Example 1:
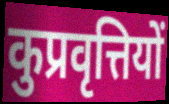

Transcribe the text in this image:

कुप्रवृत्तियों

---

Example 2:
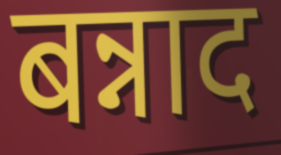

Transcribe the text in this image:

बन्नाद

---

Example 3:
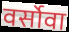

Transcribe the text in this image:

वर्सोवा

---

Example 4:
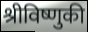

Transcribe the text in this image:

श्रीविष्णुकी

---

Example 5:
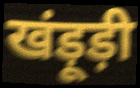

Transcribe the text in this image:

खंड़ूड़ी